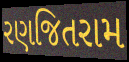
રણજિતરામ